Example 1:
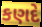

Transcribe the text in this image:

કણદે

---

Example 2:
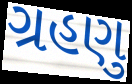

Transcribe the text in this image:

ગ્રહણુ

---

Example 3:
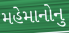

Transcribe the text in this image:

મહેમાનોનુ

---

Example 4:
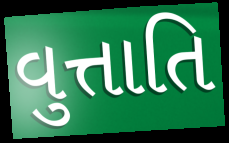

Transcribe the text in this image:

વુત્તાતિ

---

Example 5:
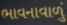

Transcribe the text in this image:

ભાવનાવાળું